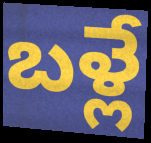
బళ్లే